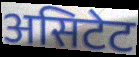
असिटेट